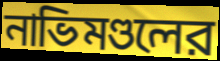
নাভিমণ্ডলের